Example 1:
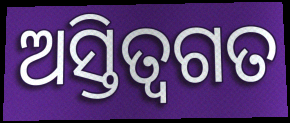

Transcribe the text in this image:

ଅସ୍ତିତ୍ବଗତ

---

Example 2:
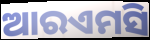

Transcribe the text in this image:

ଆରଏମସି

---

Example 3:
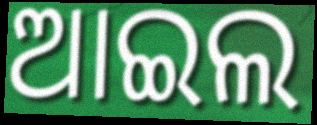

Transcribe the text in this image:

ଆଇଲ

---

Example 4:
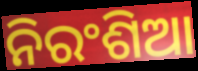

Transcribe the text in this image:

ନିରଂଶିଆ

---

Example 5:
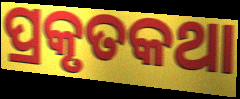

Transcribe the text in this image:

ପ୍ରକୃତକଥା